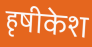
हृषीकेश